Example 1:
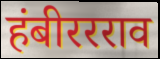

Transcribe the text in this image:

हंबीररराव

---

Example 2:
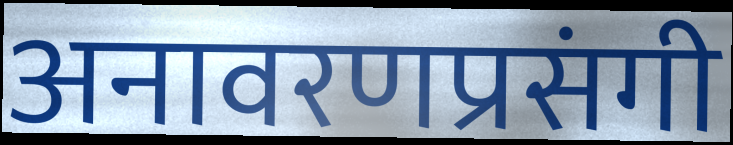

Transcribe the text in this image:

अनावरणप्रसंगी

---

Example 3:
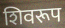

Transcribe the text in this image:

शिवरूप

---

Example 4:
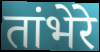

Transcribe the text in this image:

तांभेरे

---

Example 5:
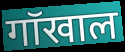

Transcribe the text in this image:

गॉखाल